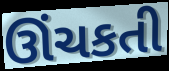
ઊંચકતી